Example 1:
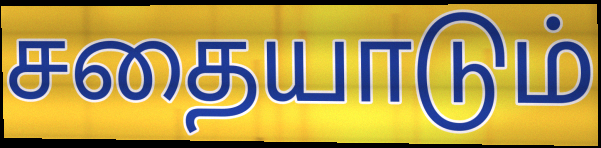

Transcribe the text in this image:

சதையாடும்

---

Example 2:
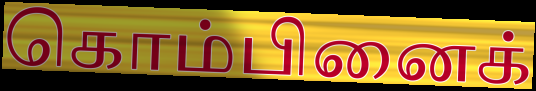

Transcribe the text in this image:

கொம்பினைக்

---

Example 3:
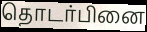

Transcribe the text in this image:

தொடர்பினை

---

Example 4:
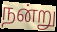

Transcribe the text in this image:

நன்று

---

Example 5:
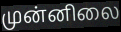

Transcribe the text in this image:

முன்னிலை